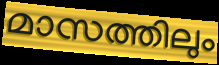
മാസത്തിലും